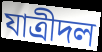
যাত্রীদল